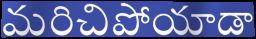
మరిచిపోయాడా